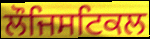
ਲੌਜਿਸਟਿਕਲ